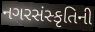
નગરસંસ્કૃતિની